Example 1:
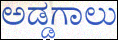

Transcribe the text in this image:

ಅಡ್ಡಗಾಲು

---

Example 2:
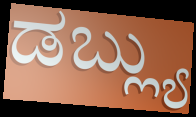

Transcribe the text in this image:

ಡಬ್ಲ್ಯು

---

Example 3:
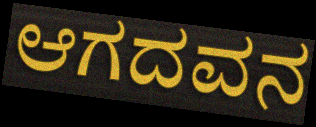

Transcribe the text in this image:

ಆಗದವನ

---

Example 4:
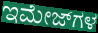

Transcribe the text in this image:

ಇಮೇಜ್‌ಗಳ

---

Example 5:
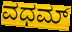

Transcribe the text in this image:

ವಧಮ್